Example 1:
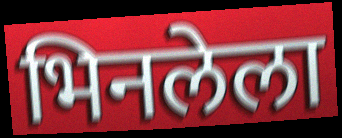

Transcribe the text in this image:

भिनलेला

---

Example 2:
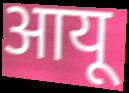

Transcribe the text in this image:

आयू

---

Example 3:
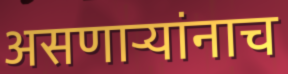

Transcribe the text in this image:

असणार्‍यांनाच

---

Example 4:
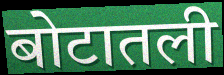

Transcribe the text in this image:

बोटातली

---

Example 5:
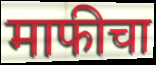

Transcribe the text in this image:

माफीचा